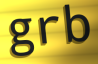
grb